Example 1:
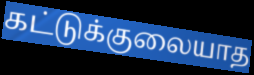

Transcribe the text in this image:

கட்டுக்குலையாத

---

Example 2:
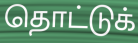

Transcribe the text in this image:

தொட்டுக்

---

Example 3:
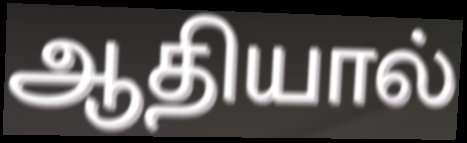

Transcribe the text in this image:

ஆதியால்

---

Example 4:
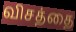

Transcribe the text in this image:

விசத்தை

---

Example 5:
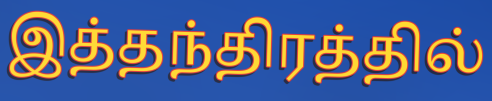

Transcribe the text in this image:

இத்தந்திரத்தில்